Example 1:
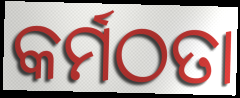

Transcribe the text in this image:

କର୍ମଠତା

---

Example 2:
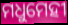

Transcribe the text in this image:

ମଧୁମେହୀ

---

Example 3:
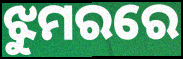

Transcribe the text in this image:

ଝୁମରରେ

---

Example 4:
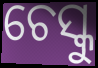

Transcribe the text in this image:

ଚେସ୍କୁ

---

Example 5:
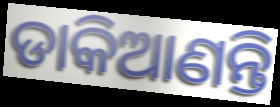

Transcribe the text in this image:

ଡାକିଆଣନ୍ତି